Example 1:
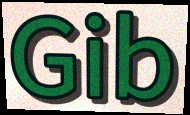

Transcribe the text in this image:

Gib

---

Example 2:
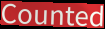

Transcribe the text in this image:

Counted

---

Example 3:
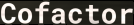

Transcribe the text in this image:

Cofactor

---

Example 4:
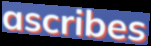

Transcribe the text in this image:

ascribes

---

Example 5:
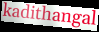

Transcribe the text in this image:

kadithangal